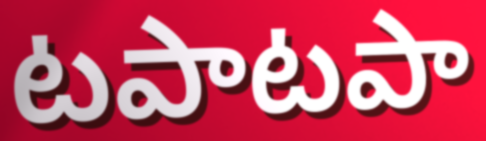
టపాటపా